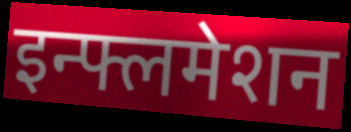
इन्फ्लमेशन